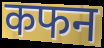
कफन